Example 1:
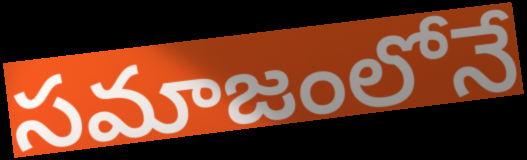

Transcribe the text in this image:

సమాజంలోనే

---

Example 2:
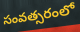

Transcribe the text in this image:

సంవత్సరంలో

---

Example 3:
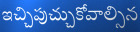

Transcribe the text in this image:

ఇచ్చిపుచ్చుకోవాల్సిన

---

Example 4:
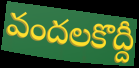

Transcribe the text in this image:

వందలకొద్దీ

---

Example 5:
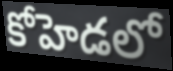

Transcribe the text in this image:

కోహెడలో